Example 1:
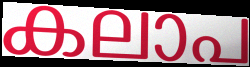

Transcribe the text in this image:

കലാപ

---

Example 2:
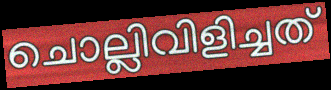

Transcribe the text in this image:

ചൊല്ലിവിളിച്ചത്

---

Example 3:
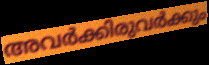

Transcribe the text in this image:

അവർക്കിരുവർക്കും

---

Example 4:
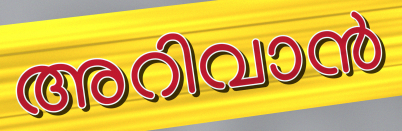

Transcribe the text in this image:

അറിവാൻ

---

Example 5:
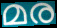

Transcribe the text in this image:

മര